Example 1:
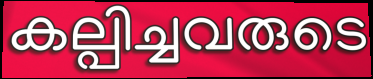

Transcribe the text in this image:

കല്പിച്ചവരുടെ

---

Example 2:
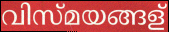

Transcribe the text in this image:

വിസ്മയങ്ങള്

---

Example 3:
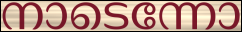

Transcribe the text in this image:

നാടെന്നോ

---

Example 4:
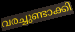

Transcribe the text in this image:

വരച്ചുണ്ടാക്കി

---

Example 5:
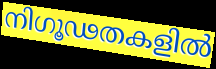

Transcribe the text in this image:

നിഗൂഢതകളിൽ